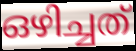
ഒഴിച്ചത്